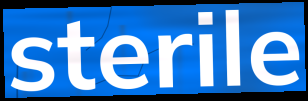
sterile